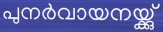
പുനർവായനയ്ക്കു്